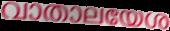
വാതാലയേശ